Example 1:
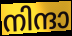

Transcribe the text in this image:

നിന്ദാ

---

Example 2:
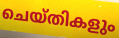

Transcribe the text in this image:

ചെയ്തികളും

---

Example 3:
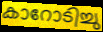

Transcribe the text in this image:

കാറോടിച്ചു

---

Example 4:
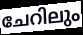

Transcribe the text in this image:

ചേറിലും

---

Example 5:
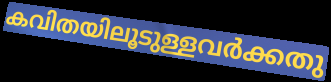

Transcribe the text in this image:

കവിതയിലൂടുള്ളവർക്കതു